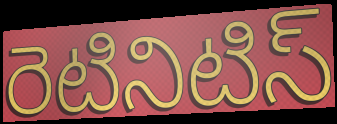
రెటినిటిస్